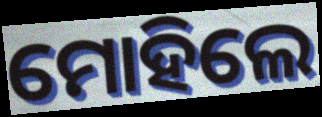
ମୋହିଲେ